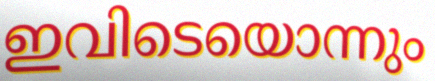
ഇവിടെയൊന്നും